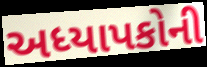
અધ્યાપકોની